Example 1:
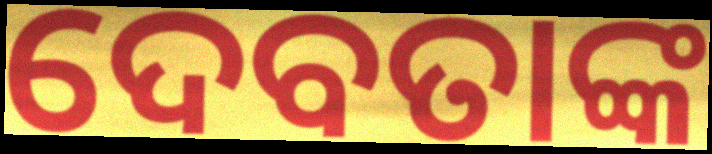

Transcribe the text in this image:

ଦେବତାଙ୍କ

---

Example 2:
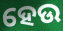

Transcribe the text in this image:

ହେଉ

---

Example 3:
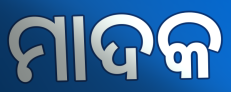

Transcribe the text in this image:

ମାଦକ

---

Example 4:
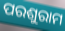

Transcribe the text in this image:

ପରଶୁରାମ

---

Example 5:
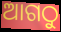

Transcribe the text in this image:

ଆଗଠୁ